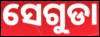
ସେଗୁଡା